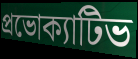
প্রভোক্যাটিভ